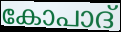
കോപാദ്